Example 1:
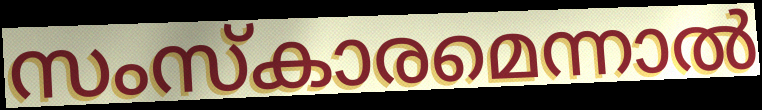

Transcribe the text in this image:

സംസ്കാരമെന്നാൽ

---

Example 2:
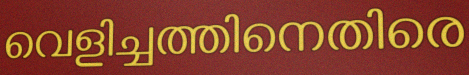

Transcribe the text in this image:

വെളിച്ചത്തിനെതിരെ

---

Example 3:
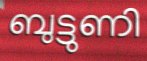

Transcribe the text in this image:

ബുട്ടുണി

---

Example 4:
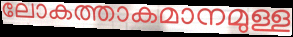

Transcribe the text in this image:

ലോകത്താകമാനമുള്ള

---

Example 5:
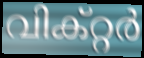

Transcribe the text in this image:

വിക്റ്റർ